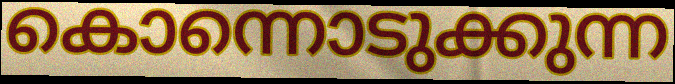
കൊന്നൊടുക്കുന്ന